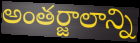
అంతర్జాలాన్ని